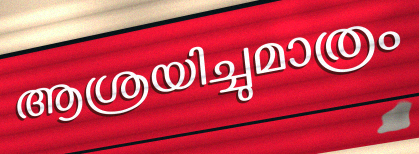
ആശ്രയിച്ചുമാത്രം